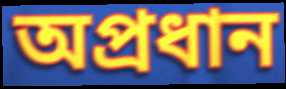
অপ্রধান